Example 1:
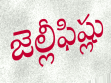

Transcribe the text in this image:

జెల్లీఫిష్లు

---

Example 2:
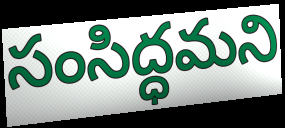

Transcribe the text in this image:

సంసిద్ధమని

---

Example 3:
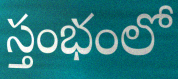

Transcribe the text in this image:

స్తంభంలో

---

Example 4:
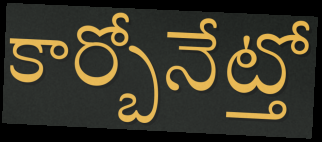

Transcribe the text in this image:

కార్బోనేట్తో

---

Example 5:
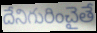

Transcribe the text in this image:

దేనిగురించైతే